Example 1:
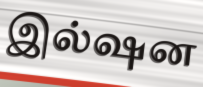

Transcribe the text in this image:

இல்ஷன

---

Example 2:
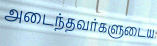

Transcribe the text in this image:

அடைந்தவர்களுடைய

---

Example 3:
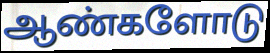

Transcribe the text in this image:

ஆண்களோடு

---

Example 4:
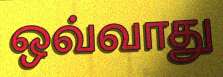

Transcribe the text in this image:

ஒவ்வாது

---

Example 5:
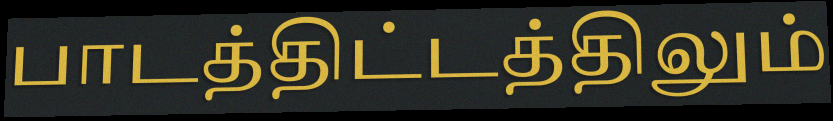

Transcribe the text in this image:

பாடத்திட்டத்திலும்